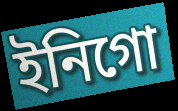
ইনিগো